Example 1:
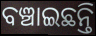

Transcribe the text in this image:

ବଞ୍ଚାଇଛନ୍ତି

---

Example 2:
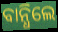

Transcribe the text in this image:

ବାନ୍ଧିଲେ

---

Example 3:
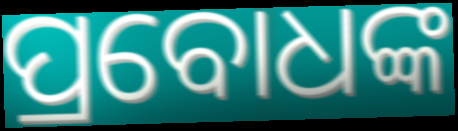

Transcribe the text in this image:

ପ୍ରବୋଧଙ୍କ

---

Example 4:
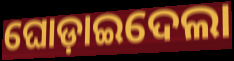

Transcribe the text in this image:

ଘୋଡ଼ାଇଦେଲା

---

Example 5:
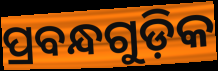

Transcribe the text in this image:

ପ୍ରବନ୍ଧଗୁଡ଼ିକ